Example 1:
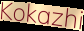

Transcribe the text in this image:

Kokazhi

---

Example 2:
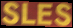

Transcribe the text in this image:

SLES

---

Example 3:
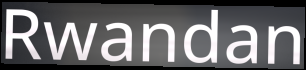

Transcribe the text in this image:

Rwandan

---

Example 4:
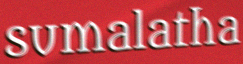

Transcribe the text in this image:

sumalatha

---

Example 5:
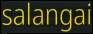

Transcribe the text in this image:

salangai